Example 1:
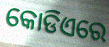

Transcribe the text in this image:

କୋଡିଏରେ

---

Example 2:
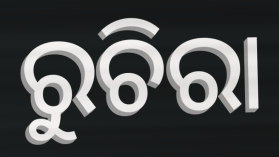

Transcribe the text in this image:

ରୁଚିରା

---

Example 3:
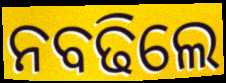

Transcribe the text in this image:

ନବଢିଲେ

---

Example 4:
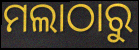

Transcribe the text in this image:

ମଲାଠାରୁ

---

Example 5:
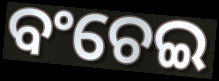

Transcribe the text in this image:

ବଂଚେଇ